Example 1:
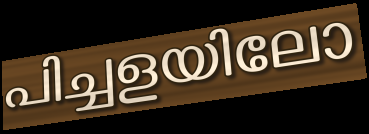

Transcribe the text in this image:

പിച്ചളയിലോ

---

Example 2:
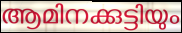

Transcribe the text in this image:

ആമിനക്കുട്ടിയും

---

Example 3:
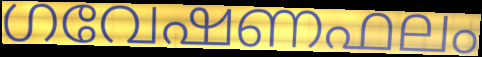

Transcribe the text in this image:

ഗവേഷണഫലം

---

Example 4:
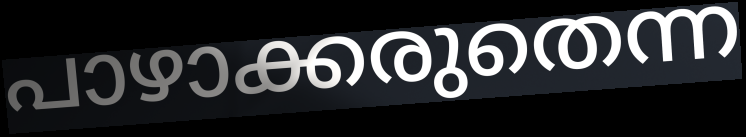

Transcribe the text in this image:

പാഴാക്കരുതെന്ന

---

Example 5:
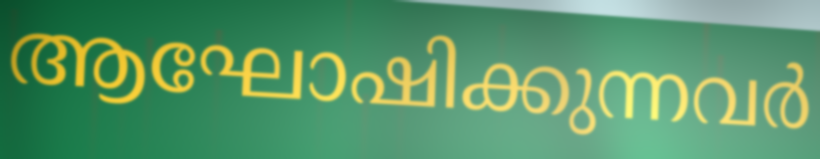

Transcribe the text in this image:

ആഘോഷിക്കുന്നവർ